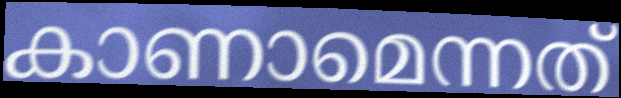
കാണാമെന്നത്